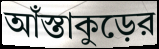
আঁস্তাকুড়ের